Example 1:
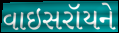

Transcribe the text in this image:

વાઇસરૉયને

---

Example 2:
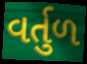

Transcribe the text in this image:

વર્તુળ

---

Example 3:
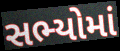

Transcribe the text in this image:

સભ્યોમાં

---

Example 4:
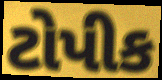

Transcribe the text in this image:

ટોપીક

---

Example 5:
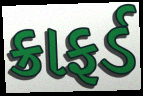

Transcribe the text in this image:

ક્રાફર્ડ